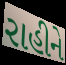
રાહીને